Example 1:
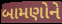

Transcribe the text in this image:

બામણોને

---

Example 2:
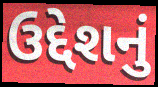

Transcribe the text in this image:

ઉદ્દેશનું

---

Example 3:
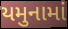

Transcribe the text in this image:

યમુનામાં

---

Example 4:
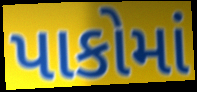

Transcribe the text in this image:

પાકોમાં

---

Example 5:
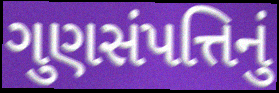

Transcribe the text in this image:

ગુણસંપત્તિનું